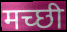
मच्छी